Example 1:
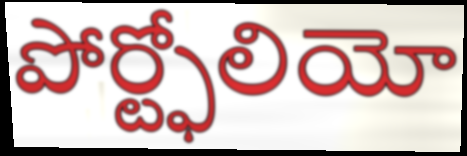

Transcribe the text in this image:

పోర్ట్ఫోలియో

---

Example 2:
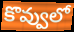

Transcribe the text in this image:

కొవ్వులో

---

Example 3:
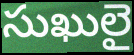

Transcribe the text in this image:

సుఖులై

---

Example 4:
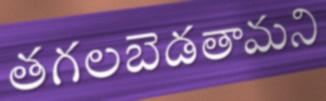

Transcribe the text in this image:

తగలబెడతామని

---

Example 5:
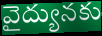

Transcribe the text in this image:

వైద్యునకు